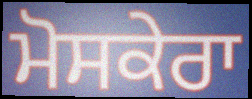
ਮੋਸਕੇਰਾ